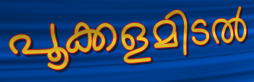
പൂക്കളമിടൽ